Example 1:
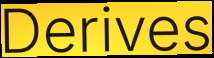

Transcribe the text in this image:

Derives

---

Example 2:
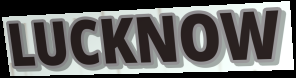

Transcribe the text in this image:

LUCKNOW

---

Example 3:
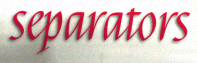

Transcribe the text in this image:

separators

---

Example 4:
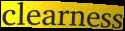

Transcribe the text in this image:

clearness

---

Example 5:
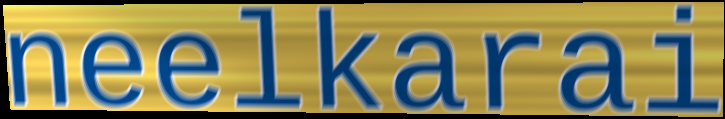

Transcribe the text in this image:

neelkarai